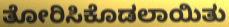
ತೋರಿಸಿಕೊಡಲಾಯಿತು